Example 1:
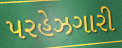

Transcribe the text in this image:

પરહેઝગારી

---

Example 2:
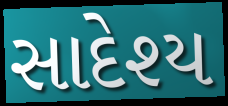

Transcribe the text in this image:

સાદેશ્ય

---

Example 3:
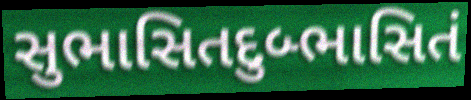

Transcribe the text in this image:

સુભાસિતદુબ્ભાસિતં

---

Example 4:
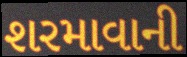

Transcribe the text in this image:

શરમાવાની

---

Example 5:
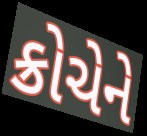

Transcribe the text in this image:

ક્રોચેને